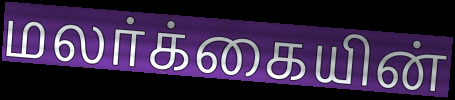
மலர்க்கையின்